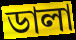
ডালা